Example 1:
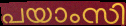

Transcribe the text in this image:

പയാംസി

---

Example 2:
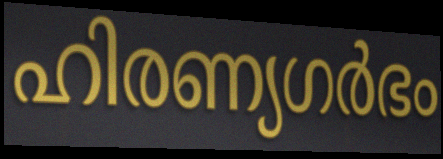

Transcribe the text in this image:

ഹിരണ്യഗർഭം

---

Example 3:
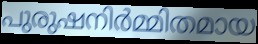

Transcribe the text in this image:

പുരുഷനിർമ്മിതമായ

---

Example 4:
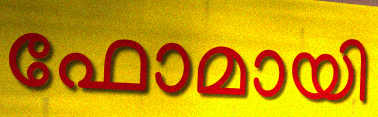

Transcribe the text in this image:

ഫോമായി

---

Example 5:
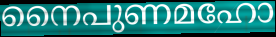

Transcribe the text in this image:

നൈപുണമഹോ